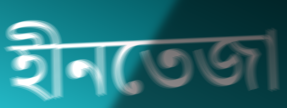
হীনতেজা